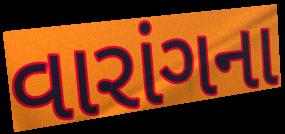
વારાંગના